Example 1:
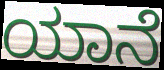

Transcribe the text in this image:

ಯಾನೆ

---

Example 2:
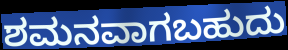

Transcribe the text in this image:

ಶಮನವಾಗಬಹುದು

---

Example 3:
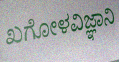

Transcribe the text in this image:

ಖಗೋಳವಿಜ್ಞಾನಿ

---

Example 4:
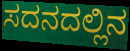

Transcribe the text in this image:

ಸದನದಲ್ಲಿನ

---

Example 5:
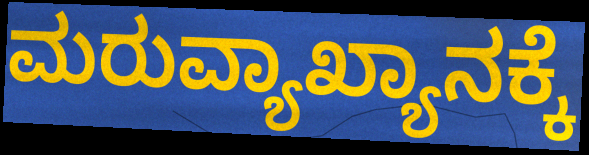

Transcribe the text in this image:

ಮರುವ್ಯಾಖ್ಯಾನಕ್ಕೆ